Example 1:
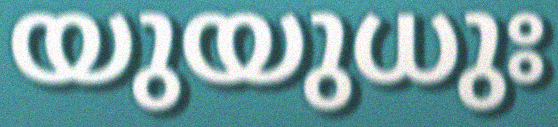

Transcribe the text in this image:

യുയുധുഃ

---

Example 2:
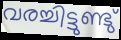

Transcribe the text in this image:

വരച്ചിട്ടുണ്ടു്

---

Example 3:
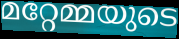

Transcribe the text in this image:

മറ്റേമ്മയുടെ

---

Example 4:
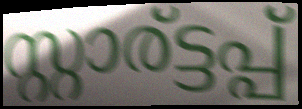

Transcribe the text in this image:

സ്റ്റാര്ട്ടപ്പ്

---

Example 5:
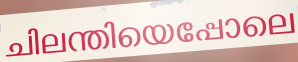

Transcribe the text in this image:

ചിലന്തിയെപ്പോലെ